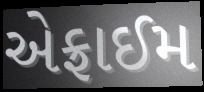
એફ્રાઈમ